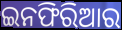
ଇନଫିରିଆର